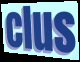
clus